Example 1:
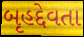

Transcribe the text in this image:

બૃહદ્દેવતા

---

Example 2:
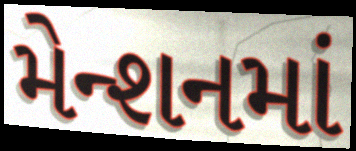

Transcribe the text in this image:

મેન્શનમાં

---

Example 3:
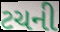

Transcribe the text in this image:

ટચની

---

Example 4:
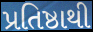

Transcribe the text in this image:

પ્રતિષ્ઠાથી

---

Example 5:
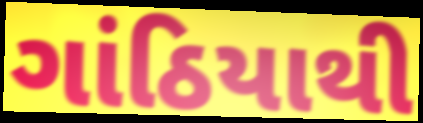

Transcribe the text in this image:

ગાંઠિયાથી